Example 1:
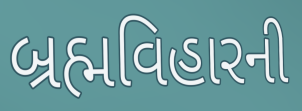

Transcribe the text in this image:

બ્રહ્મવિહારની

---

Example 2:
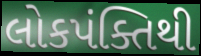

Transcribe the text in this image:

લોકપંક્તિથી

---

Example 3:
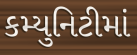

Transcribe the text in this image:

કમ્યુનિટીમાં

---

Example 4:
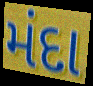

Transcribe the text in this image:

મંદા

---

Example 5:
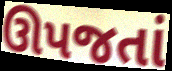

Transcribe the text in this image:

ઊપજતાં